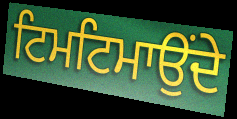
ਟਿਮਟਿਮਾਉਂਦੇ